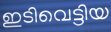
ഇടിവെട്ടിയ